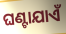
ଘଣ୍ଟାଯାଏଁ